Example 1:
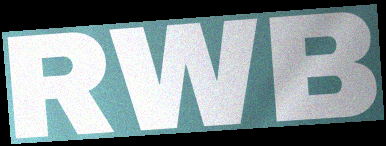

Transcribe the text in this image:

RWB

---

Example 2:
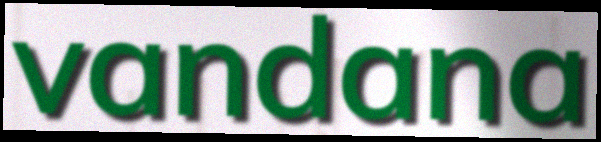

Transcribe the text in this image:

vandana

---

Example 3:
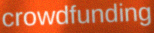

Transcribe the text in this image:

crowdfunding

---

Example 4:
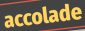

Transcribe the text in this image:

accolade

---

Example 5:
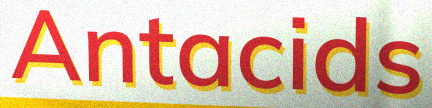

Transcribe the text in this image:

Antacids